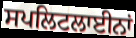
ਸਪਲਿਟਲਾਈਨਾਂ